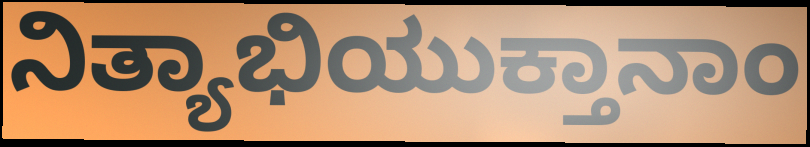
ನಿತ್ಯಾಭಿಯುಕ್ತಾನಾಂ